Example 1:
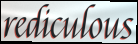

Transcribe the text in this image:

rediculous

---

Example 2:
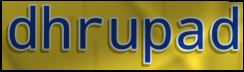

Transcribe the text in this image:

dhrupad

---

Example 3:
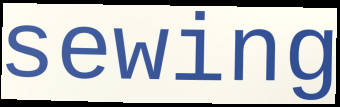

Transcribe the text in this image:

sewing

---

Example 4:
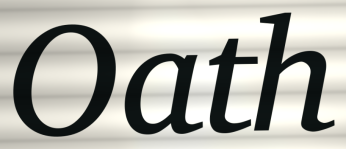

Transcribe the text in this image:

Oath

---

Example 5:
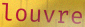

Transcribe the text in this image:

louvre